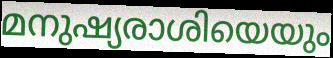
മനുഷ്യരാശിയെയും